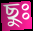
ছুঃ